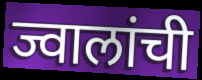
ज्वालांची